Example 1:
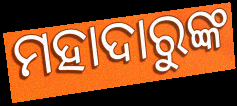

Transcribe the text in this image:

ମହାଦାରୁଙ୍କ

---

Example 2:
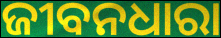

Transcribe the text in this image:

ଜୀବନଧାରା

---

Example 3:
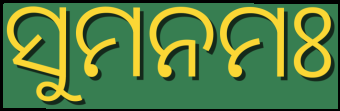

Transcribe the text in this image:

ସୁମନମଃ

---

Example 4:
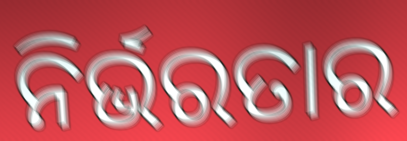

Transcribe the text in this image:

ନିର୍ଭରତାର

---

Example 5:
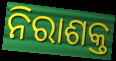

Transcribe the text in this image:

ନିରାଶକ୍ତ